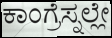
ಕಾಂಗ್ರೆಸ್ನಲ್ಲೇ